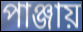
পাঞ্জায়